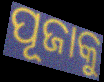
ପୂଜାକୁ